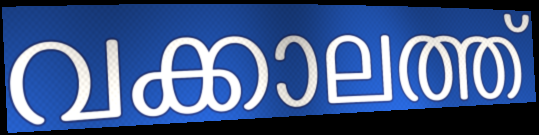
വക്കാലത്ത്